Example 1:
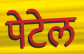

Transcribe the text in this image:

पेटेल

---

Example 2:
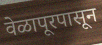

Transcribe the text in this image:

वेळापूरपासून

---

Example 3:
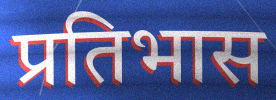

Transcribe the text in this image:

प्रतिभास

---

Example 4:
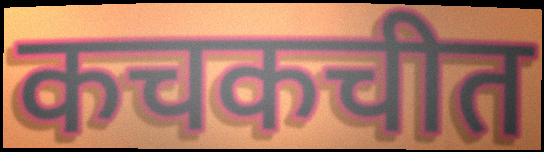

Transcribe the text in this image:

कचकचीत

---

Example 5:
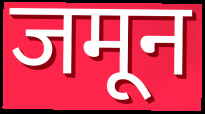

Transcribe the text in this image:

जमून